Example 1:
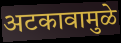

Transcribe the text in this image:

अटकावामुळे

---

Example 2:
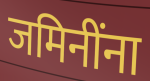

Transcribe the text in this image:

जमिनींना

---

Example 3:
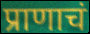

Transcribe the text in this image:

प्राणाचं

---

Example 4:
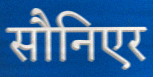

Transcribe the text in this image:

सौनिएर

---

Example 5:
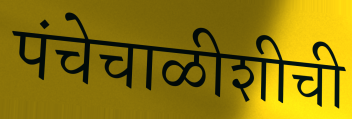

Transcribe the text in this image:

पंचेचाळीशीची